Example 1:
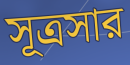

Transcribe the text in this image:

সূত্রসার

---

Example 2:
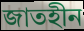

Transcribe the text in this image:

জাতহীন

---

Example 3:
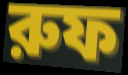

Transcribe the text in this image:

রুফ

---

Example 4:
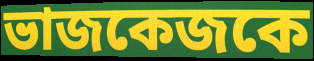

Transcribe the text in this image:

ভাজকেজকে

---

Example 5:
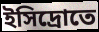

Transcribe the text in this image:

ইসিদ্রোতে